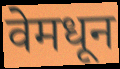
वेमधून